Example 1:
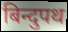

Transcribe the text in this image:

बिन्दुपथ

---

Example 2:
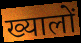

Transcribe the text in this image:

ख्यालों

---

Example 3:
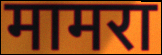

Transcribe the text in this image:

मामरा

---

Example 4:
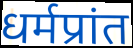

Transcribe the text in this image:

धर्मप्रांत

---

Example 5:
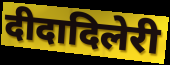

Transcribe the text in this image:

दीदादिलेरी